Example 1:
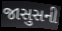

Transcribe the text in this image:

જાસુસની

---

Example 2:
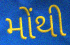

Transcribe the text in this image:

મોંથી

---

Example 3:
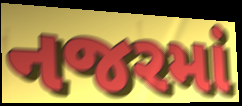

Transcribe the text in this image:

નજરમાં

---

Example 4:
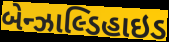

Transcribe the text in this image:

બેન્ઝાલ્ડિહાઇડ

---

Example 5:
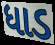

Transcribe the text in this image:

ધાડ